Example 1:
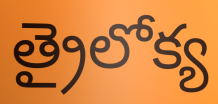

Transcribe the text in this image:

త్రైలోక్య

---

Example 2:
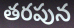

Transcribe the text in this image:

తరపున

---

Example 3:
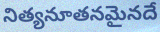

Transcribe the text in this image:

నిత్యనూతనమైనదే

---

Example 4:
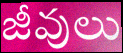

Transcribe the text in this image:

జీవులు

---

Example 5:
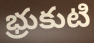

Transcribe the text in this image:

భ్రుకుటి